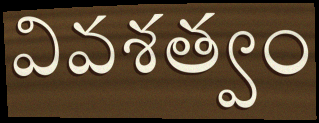
వివశత్వం